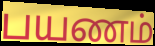
பயணம்